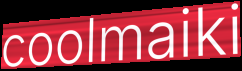
coolmaiki